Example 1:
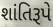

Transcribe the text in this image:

શાંતિરૂપે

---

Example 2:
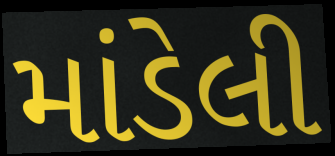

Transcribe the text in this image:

માંડેલી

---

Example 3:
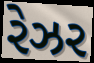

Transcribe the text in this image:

રેઝર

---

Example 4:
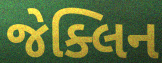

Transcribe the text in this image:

જેક્લિન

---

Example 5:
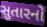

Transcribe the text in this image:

સુતારનો